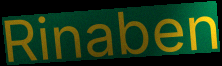
Rinaben